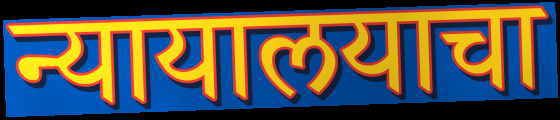
न्यायालयाचा